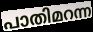
പാതിമറന്ന